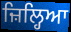
ਜ਼ਿਲ੍ਹਿਆ